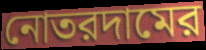
নোতরদামের